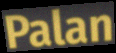
Palan